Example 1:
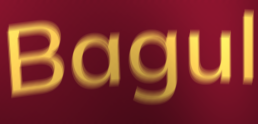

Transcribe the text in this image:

Bagul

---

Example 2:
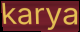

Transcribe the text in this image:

karya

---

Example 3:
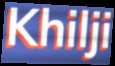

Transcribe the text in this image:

Khilji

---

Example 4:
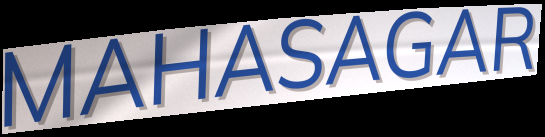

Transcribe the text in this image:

MAHASAGAR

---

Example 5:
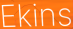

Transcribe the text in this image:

Ekins